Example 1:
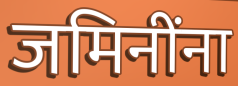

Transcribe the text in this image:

जमिनींना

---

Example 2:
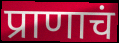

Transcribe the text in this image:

प्राणाचं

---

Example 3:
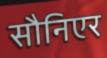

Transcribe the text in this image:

सौनिएर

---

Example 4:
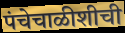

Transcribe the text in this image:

पंचेचाळीशीची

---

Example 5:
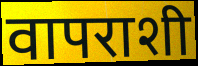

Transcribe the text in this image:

वापराशी